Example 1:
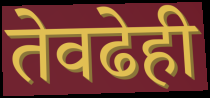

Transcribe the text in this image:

तेवढेही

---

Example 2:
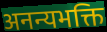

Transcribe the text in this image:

अनन्यभक्ति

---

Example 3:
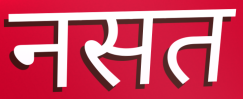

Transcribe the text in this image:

नसत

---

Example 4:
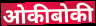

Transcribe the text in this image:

ओकीबोकी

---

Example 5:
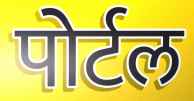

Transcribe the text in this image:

पोर्टल